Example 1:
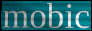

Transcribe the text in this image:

mobic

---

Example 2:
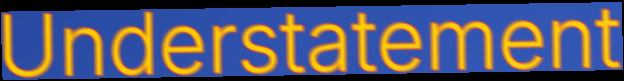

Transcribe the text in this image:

Understatement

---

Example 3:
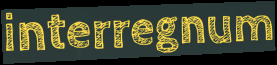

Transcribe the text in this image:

interregnum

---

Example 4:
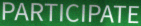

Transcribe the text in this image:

PARTICIPATE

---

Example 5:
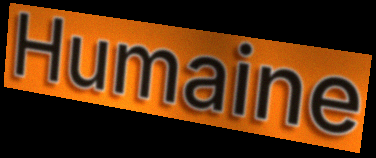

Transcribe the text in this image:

Humaine